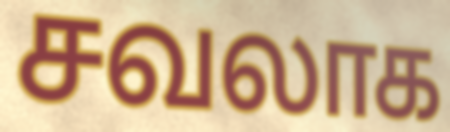
சவலாக